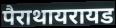
पैराथायरायड